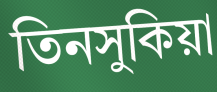
তিনসুকিয়া